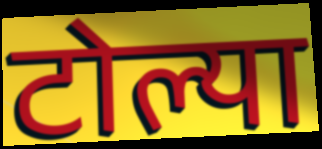
टोल्या